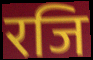
रजि